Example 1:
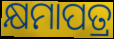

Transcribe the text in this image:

କ୍ଷମାପତ୍ର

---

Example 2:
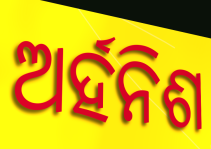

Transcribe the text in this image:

ଅର୍ହନିଶ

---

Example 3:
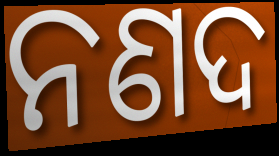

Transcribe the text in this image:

ନଣଦ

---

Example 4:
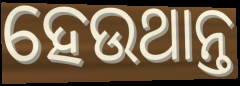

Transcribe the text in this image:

ହେଉଥାନ୍ତ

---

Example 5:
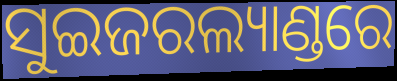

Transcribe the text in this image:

ସୁଇଜରଲ୍ୟାଣ୍ଡରେ